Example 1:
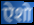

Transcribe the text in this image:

ऐशो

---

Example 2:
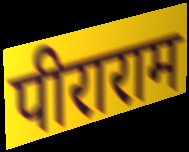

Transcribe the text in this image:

पीराराम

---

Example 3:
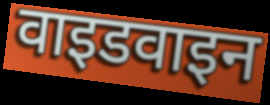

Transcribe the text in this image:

वाइडवाइन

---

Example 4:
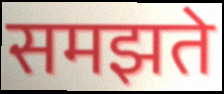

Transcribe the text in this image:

समझते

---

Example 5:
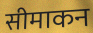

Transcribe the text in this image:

सीमाकन